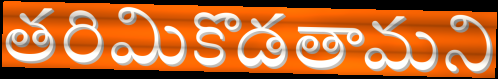
తరిమికొడతామని